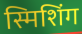
स्मिशिंग